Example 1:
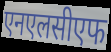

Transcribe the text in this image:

एनएलसीएफ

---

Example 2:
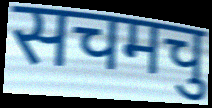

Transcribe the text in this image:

सचमचु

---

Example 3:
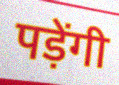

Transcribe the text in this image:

पड़ेंगी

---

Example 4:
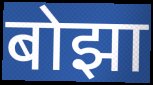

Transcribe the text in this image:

बोझा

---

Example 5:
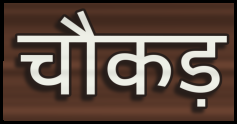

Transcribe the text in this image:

चौकड़